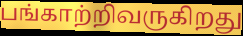
பங்காற்றிவருகிறது